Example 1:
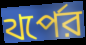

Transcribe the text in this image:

থর্পের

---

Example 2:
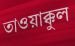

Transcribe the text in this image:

তাওয়াক্কুল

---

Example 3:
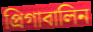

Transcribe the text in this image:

প্রিগাবালিন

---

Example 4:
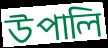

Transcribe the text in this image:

উপালি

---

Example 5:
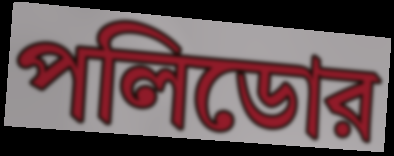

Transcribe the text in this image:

পলিডোর